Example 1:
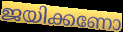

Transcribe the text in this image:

ജയിക്കണോ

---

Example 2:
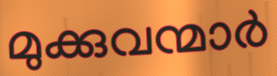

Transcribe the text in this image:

മുക്കുവന്മാർ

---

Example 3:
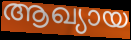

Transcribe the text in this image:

ആഖ്യായ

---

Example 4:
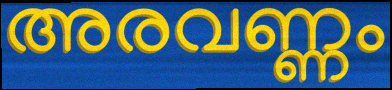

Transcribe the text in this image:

അരവണ്ണം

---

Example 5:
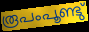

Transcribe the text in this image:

രൂപംപൂണ്ടു്